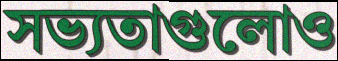
সভ্যতাগুলোও